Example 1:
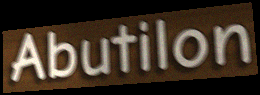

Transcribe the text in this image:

Abutilon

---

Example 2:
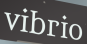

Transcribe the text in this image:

vibrio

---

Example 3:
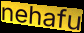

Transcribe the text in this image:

nehafu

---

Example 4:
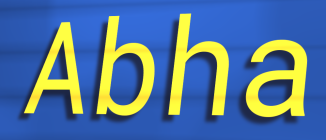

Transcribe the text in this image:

Abha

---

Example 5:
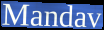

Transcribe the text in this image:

Mandav